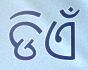
ଡିଏଁ